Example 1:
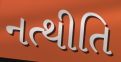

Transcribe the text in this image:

નત્થીતિ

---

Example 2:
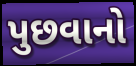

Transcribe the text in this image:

પુછવાનો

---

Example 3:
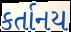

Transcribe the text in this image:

કર્તાનય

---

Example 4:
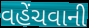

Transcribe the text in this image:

વહેંચવાની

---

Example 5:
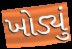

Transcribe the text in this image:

ખોડ્યું